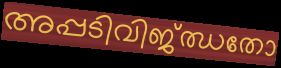
അപ്പടിവിജ്ഝതോ